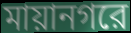
মায়ানগরে